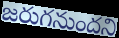
జరుగనుందని